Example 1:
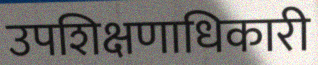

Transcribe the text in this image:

उपशिक्षणाधिकारी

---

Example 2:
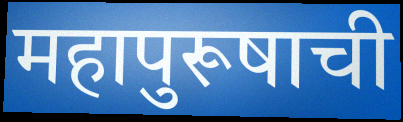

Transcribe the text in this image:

महापुरूषाची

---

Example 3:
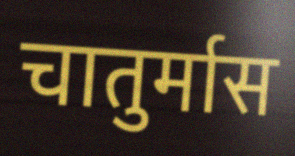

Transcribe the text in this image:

चातुर्मास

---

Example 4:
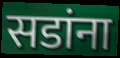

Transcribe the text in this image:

सडांना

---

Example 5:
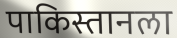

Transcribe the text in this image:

पाकिस्तानला